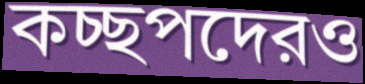
কচ্ছপদেরও